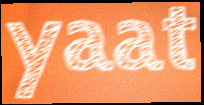
yaat